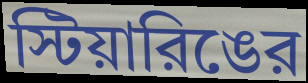
স্টিয়ারিঙের